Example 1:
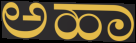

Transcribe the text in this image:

ಅಹಾ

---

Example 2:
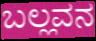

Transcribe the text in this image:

ಬಲ್ಲವನ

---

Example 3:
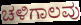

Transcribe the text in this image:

ಚಳಿಗಾಲವು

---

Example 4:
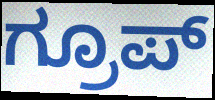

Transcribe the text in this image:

ಗ್ರೂಪ್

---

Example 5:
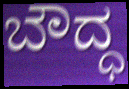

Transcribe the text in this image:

ಬೌದ್ಧ